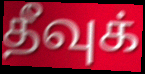
தீவுக்